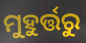
ମୁହୁର୍ତ୍ତରୁ